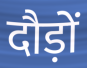
दौड़ों